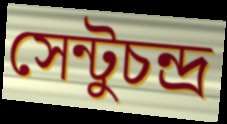
সেন্টুচন্দ্র